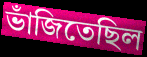
ভাঁজিতেছিল